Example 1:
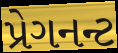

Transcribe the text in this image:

પ્રેગનન્ટ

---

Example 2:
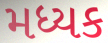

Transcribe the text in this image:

મધ્યક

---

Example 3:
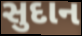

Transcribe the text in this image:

સુદાન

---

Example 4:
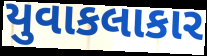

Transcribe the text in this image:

યુવાકલાકાર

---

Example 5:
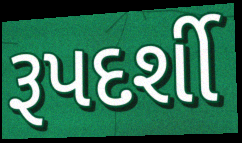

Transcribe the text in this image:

રૂપદર્શી